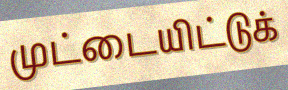
முட்டையிட்டுக்